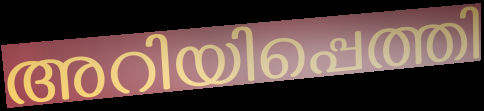
അറിയിപ്പെത്തി